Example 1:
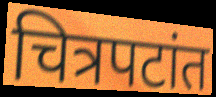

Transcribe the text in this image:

चित्रपटांत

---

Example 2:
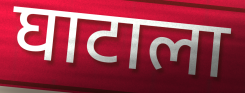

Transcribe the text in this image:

घाटाला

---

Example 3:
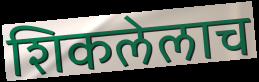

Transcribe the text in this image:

शिकलेलाच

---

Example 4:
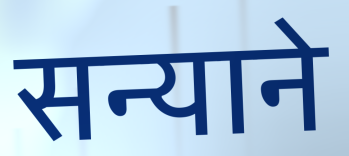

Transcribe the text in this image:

सन्याने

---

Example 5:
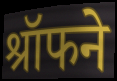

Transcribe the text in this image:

श्रॉफने